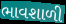
ભાવશાળી